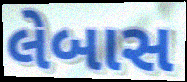
લેબાસ